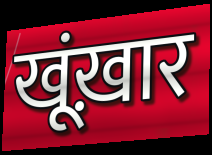
खूंख़ार